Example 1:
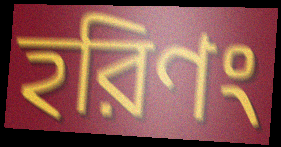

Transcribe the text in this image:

হরিণং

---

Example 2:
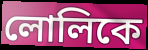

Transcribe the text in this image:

লোলিকে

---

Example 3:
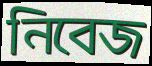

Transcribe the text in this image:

নিবেজ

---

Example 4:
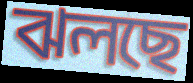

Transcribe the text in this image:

ঝলছে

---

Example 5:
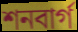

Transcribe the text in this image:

শনবার্গ